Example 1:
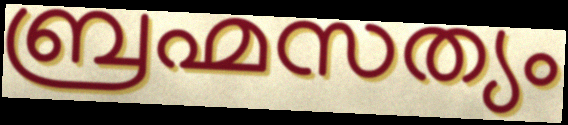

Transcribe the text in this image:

ബ്രഹ്മസത്യം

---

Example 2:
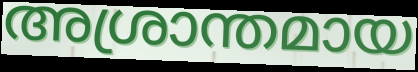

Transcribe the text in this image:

അശ്രാന്തമായ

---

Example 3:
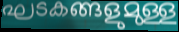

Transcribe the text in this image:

ഘടകങ്ങളുമുള്ള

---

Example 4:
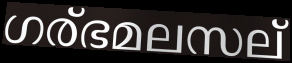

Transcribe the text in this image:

ഗര്ഭമലസല്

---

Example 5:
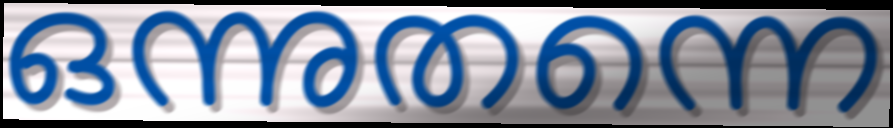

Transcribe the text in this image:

ഒന്നുതന്നെ